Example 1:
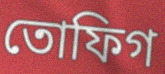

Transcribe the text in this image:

তোফিগ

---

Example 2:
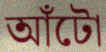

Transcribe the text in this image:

আঁটো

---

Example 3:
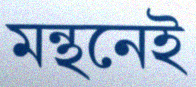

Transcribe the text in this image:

মন্থনেই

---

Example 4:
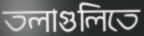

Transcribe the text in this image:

তলাগুলিতে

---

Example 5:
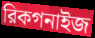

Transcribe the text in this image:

রিকগনাইজ